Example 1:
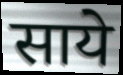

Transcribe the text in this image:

साये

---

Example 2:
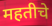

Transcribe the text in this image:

महतीचे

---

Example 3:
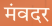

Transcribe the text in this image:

मंवदर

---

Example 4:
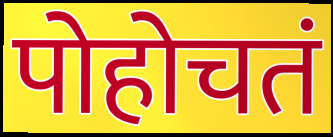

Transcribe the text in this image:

पोहोचतं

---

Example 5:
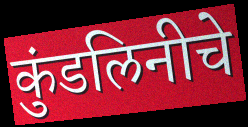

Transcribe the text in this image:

कुंडलिनीचे